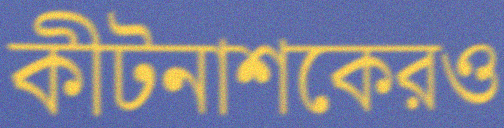
কীটনাশকেরও